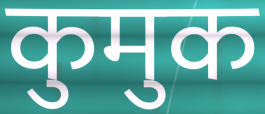
कुमुक